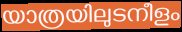
യാത്രയിലുടനീളം